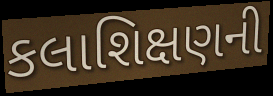
કલાશિક્ષણની